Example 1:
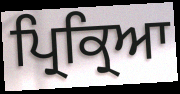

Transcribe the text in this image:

ਪ੍ਰਿਕ੍ਰਿਆ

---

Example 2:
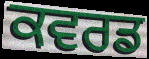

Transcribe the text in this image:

ਕਵਰਡ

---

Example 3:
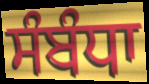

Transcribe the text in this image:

ਸੰਬੰਧਾ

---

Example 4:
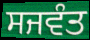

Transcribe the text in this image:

ਸਜਵੰਤ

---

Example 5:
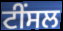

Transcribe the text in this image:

ਟੀਂਸਲ